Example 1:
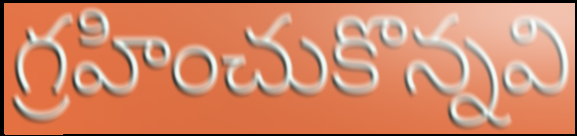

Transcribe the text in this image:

గ్రహించుకొన్నవి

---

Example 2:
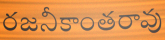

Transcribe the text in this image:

రజనీకాంతరావు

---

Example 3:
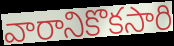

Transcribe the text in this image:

వారానికొకసారి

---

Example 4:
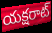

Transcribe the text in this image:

యక్షరాట్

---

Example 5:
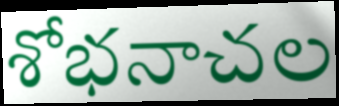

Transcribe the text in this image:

శోభనాచల